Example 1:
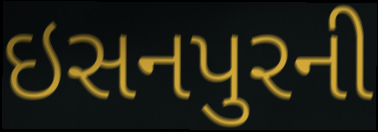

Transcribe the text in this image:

ઇસનપુરની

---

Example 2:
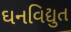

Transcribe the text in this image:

ઘનવિદ્યુત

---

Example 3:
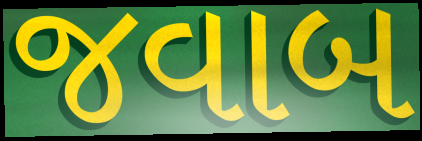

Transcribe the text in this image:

જવાબ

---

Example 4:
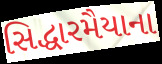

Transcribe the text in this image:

સિદ્ધારમૈયાના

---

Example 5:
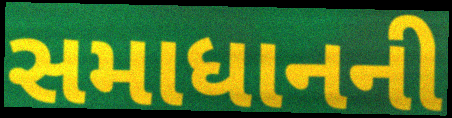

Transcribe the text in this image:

સમાધાનની